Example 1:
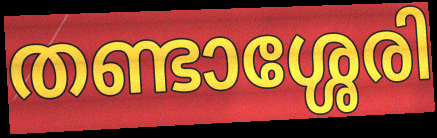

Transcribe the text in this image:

തണ്ടാശ്ശേരി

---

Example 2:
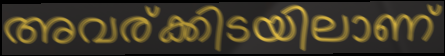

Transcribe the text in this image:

അവര്ക്കിടയിലാണ്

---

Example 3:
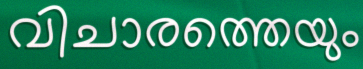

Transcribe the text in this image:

വിചാരത്തെയും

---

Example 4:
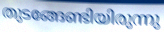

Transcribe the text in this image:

തുടങ്ങേണ്ടിയിരുന്നു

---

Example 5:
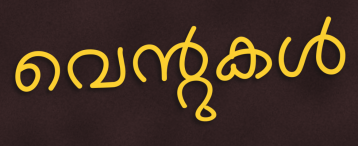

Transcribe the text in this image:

വെന്റുകൾ